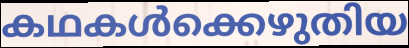
കഥകൾക്കെഴുതിയ